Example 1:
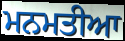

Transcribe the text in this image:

ਮਨਮਤੀਆ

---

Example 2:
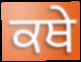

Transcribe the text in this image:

ਕਥੇ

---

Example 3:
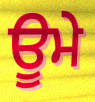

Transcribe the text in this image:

ਊਮੇ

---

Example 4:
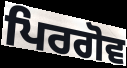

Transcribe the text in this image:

ਪਿਰਗੋਵ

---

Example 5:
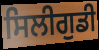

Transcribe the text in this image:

ਸਿਲੀਗੁਡੀ